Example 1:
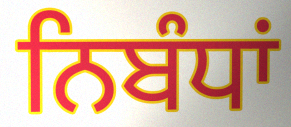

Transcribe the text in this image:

ਨਿਬੰਧਾਂ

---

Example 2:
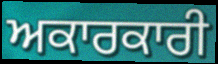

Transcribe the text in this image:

ਅਕਾਰਕਾਰੀ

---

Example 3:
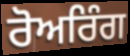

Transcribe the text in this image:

ਰੋਅਰਿੰਗ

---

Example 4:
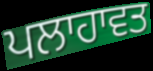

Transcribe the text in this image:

ਪਲਾਹਾਵਤ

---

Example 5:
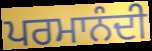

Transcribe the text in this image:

ਪਰਮਾਨੰਦੀ